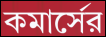
কমার্সের